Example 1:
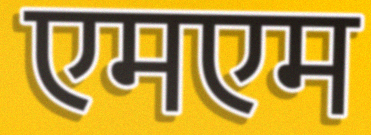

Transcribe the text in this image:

एमएम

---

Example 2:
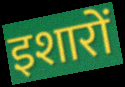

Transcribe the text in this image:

इशारों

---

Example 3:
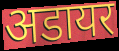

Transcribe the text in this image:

अडायर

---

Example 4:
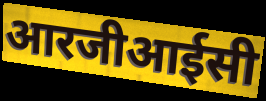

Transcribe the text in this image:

आरजीआईसी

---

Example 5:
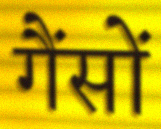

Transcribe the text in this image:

गैंसों